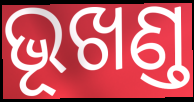
ଭୂଖଣ୍ଡ